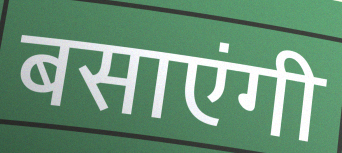
बसाएंगी